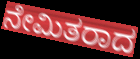
ನೇಮಿತರಾದ